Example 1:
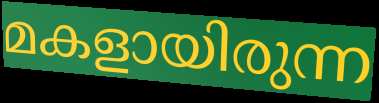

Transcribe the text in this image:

മകളായിരുന്ന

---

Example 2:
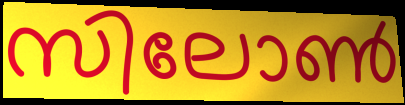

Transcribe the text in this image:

സിലോൺ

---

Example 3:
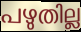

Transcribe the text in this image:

പഴുതില്ല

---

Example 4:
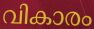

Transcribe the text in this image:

വികാരം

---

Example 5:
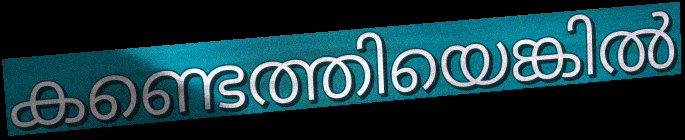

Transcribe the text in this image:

കണ്ടെത്തിയെങ്കിൽ